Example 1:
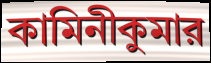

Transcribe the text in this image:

কামিনীকুমার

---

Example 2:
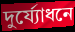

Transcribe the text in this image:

দুর্য্যোধনে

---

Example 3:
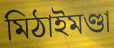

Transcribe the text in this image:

মিঠাইমণ্ডা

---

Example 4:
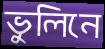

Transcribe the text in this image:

ভুলিনে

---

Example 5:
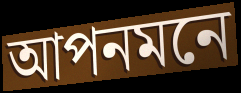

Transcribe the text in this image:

আপনমনে